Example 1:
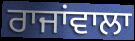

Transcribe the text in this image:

ਰਾਜਾਂਵਾਲਾ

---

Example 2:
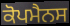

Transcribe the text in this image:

ਕੋਪਮੈਨਸ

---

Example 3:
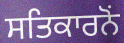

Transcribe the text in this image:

ਸਤਿਕਾਰਨੋਂ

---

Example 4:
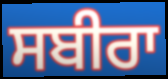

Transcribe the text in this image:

ਸਬੀਰਾ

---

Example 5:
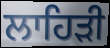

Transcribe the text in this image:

ਲਾਹਿੜੀ